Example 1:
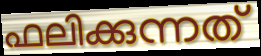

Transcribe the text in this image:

ഫലിക്കുന്നത്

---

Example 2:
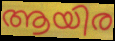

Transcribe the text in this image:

ആയിര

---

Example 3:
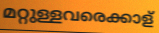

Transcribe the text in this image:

മറ്റുള്ളവരെക്കാള്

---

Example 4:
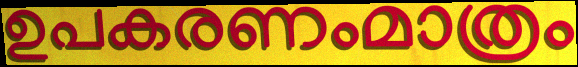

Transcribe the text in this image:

ഉപകരണംമാത്രം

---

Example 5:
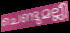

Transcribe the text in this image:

ചെണ്ടുമല്ലീ